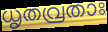
ധൃതവ്രതാഃ